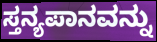
ಸ್ತನ್ಯಪಾನವನ್ನು